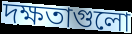
দক্ষতাগুলো